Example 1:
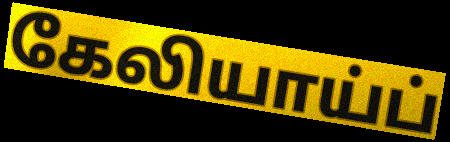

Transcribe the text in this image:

கேலியாய்ப்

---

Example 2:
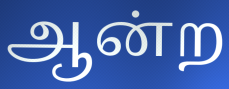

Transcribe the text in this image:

ஆன்ற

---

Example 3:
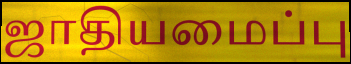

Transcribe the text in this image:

ஜாதியமைப்பு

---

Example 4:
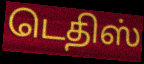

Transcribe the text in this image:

டெதிஸ்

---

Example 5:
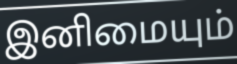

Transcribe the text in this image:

இனிமையும்